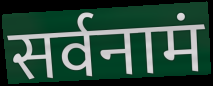
सर्वनामं